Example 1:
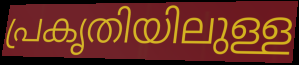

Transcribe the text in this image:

പ്രകൃതിയിലുള്ള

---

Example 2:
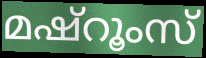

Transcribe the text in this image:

മഷ്റൂംസ്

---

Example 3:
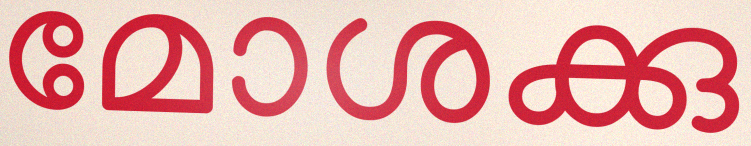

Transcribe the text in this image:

മോശക്കു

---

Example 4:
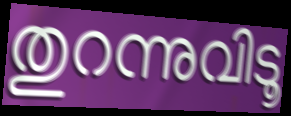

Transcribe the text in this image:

തുറന്നുവിടൂ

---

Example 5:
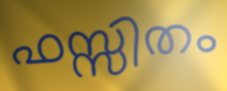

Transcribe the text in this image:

ഫസ്സിതം